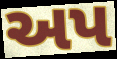
અપ